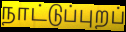
நாட்டுப்புறப்